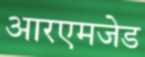
आरएमजेड